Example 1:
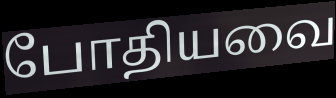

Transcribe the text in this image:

போதியவை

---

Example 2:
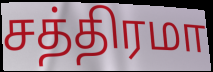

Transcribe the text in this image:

சத்திரமா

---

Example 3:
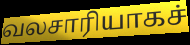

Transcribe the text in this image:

வலசாரியாகச்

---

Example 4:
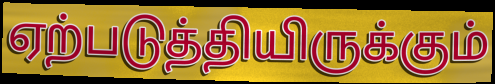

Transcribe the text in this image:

ஏற்படுத்தியிருக்கும்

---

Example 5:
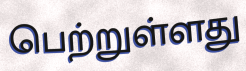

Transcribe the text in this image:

பெற்றுள்ளது